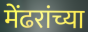
मेंढरांच्या